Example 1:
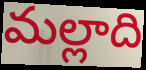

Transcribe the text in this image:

మల్లాది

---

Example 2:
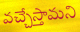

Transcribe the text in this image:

వచ్చేస్తామని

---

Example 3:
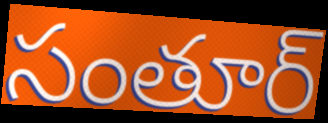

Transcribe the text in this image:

సంతూర్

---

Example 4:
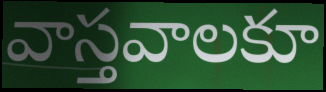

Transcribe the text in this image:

వాస్తవాలకూ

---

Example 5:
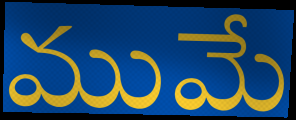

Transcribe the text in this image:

ముమే